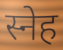
स्नेह